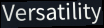
Versatility